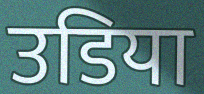
उडिया